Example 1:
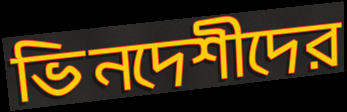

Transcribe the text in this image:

ভিনদেশীদের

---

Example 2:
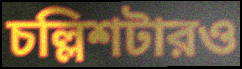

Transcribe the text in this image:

চল্লিশটারও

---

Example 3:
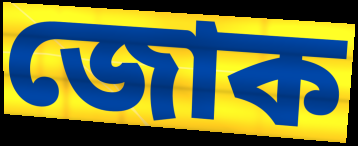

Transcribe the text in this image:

জোক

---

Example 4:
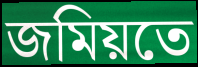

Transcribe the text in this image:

জমিয়তে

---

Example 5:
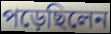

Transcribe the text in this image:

পড়েছিলেন